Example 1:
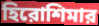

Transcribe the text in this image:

হিরোশিমার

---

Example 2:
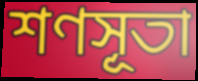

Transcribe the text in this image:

শণসূতা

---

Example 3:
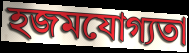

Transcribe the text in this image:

হজমযোগ্যতা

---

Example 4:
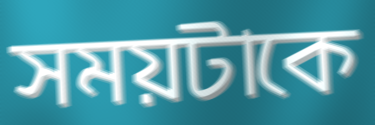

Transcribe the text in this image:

সময়টাকে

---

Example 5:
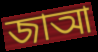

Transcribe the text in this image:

জাআ